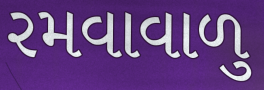
રમવાવાળુ